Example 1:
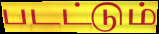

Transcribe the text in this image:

படட்டும்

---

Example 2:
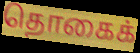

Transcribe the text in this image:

தொகைக்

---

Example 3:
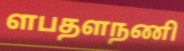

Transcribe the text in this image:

ளபதளநணி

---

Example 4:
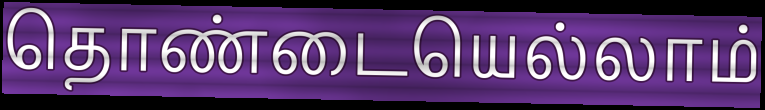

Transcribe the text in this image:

தொண்டையெல்லாம்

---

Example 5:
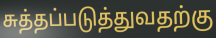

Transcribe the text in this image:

சுத்தப்படுத்துவதற்கு